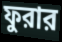
ফুরার